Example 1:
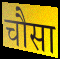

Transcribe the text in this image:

चौसा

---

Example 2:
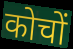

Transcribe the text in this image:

कोचों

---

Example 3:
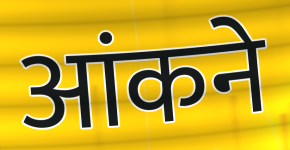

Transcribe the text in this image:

आंकने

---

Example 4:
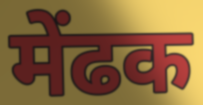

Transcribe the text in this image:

मेंढक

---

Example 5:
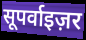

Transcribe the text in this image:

सूपर्वाइज़र